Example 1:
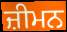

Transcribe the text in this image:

ਜ਼ੀਮਨ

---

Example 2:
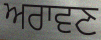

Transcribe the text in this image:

ਅਰਾਵਣ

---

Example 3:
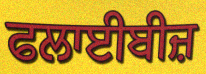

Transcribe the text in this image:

ਫਲਾਈਬੀਜ਼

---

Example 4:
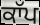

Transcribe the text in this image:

ਕਾੱਪ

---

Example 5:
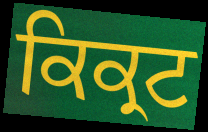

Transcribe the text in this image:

ਕਿਕ੍ਰਟ